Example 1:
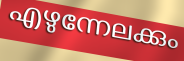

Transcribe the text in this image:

എഴുന്നേലക്കും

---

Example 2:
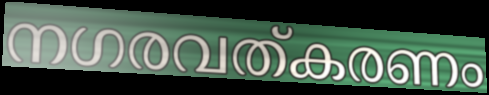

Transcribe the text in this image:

നഗരവത്കരണം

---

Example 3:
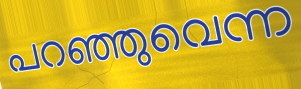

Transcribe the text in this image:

പറഞ്ഞുവെന്ന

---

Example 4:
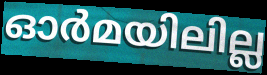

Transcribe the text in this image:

ഓർമയിലില്ല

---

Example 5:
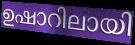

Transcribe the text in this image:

ഉഷാറിലായി